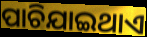
ପାଚିଯାଇଥାଏ